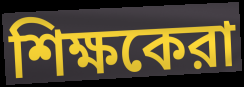
শিক্ষকেরা